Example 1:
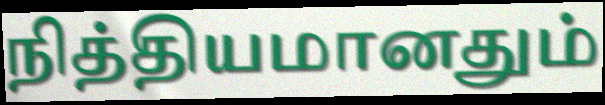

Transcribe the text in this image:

நித்தியமானதும்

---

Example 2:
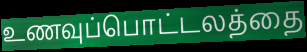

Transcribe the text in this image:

உணவுப்பொட்டலத்தை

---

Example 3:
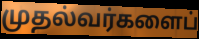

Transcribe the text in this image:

முதல்வர்களைப்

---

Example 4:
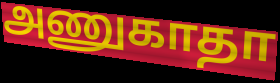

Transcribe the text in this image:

அணுகாதா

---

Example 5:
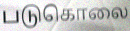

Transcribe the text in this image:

படுகொலை